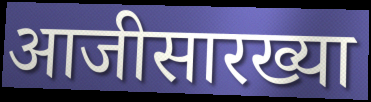
आजीसारख्या